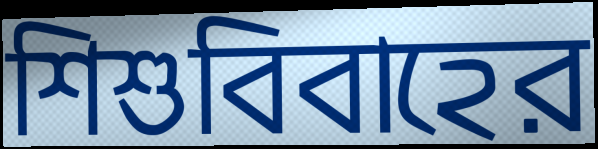
শিশুবিবাহের